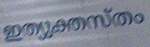
ഇത്യുക്തസ്തം